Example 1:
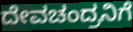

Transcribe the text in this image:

ದೇವಚಂದ್ರನಿಗೆ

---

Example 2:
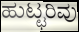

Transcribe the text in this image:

ಹುಟ್ಟರಿವು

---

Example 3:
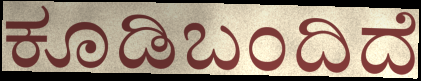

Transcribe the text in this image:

ಕೂಡಿಬಂದಿದೆ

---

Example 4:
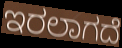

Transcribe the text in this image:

ಇರಲಾಗದೆ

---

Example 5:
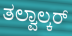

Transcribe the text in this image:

ತಲ್ವಾಲ್ಕರ್